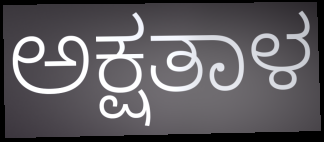
ಅಕ್ಷತಾಳ